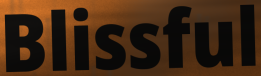
Blissful